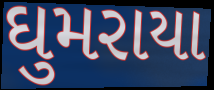
ઘુમરાયા